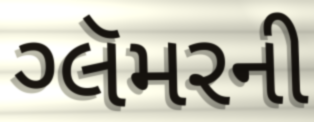
ગ્લૅમરની